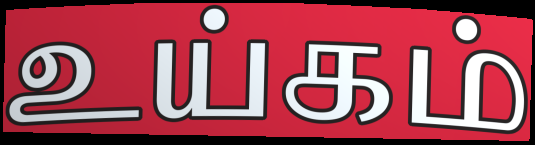
உய்கம்